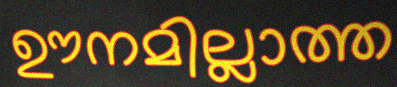
ഊനമില്ലാത്ത